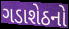
ગડાશેઠનો